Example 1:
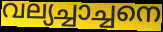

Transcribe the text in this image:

വല്യച്ചാച്ചനെ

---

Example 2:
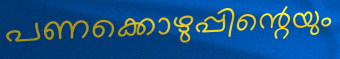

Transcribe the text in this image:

പണക്കൊഴുപ്പിന്റെയും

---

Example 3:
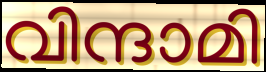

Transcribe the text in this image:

വിന്ദാമി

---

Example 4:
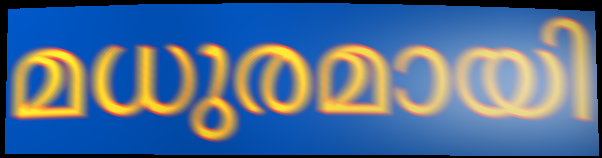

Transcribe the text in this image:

മധുരമായി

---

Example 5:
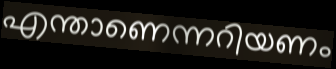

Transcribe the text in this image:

എന്താണെന്നറിയണം